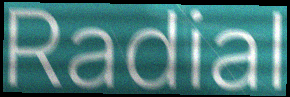
Radial